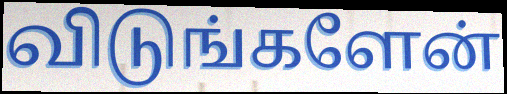
விடுங்களேன்